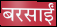
बरसाईं